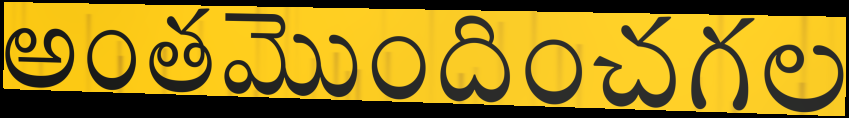
అంతమొందించగల